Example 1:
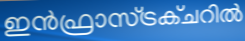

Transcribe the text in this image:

ഇൻഫ്രാസ്ട്രക്ചറിൽ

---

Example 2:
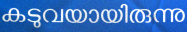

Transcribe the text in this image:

കടുവയായിരുന്നു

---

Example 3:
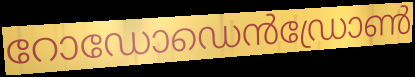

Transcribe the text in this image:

റോഡോഡെൻഡ്രോൺ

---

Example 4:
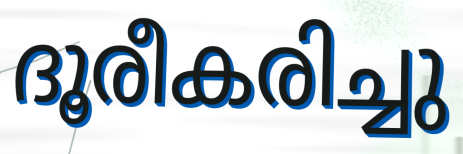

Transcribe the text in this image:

ദൂരീകരിച്ചു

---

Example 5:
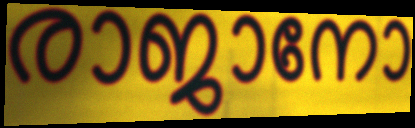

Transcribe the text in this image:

രാജാനോ